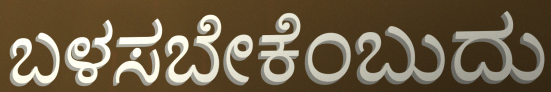
ಬಳಸಬೇಕೆಂಬುದು